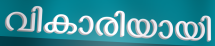
വികാരിയായി